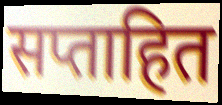
सप्ताहित